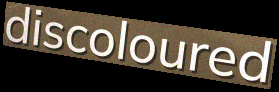
discoloured